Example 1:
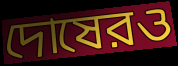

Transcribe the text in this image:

দোষেরও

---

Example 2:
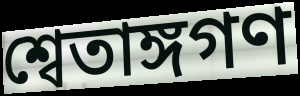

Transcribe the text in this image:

শ্বেতাঙ্গগণ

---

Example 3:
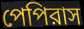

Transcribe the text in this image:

পেপিরাস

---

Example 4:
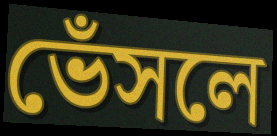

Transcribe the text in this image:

ভেঁসলে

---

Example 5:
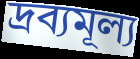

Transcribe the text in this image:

দ্রব্যমূল্য